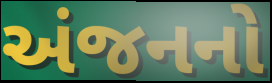
અંજનનો